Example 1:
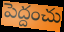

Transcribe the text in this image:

పెద్దంచు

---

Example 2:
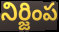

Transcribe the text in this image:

నిర్జింప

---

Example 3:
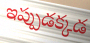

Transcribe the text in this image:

ఇప్పుడక్కడ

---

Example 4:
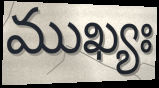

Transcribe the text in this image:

ముఖ్యః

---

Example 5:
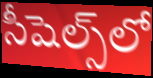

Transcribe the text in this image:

సీషెల్స్‌లో